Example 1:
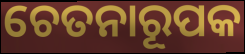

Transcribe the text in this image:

ଚେତନାରୂପକ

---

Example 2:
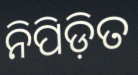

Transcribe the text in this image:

ନିପିଡ଼ିତ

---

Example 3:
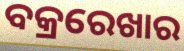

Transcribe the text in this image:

ବକ୍ରରେଖାର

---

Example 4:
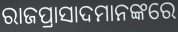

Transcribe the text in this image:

ରାଜପ୍ରାସାଦମାନଙ୍କରେ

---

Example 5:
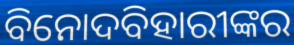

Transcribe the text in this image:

ବିନୋଦବିହାରୀଙ୍କର